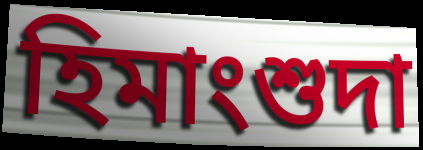
হিমাংশুদা